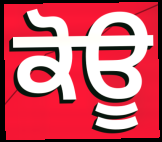
ਕੋਊ